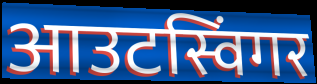
आउटस्विंगर